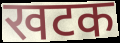
खटक